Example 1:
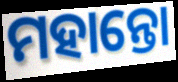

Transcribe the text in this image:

ମହାନ୍ତୋ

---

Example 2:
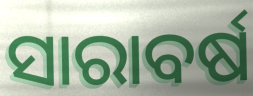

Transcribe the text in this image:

ସାରାବର୍ଷ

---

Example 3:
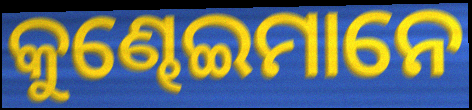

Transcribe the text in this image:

କୁଣ୍ଢେଇମାନେ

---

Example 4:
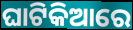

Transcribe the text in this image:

ଘାଟିକିଆରେ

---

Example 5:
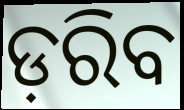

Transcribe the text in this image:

ଡ଼ରିବ